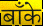
बाँके